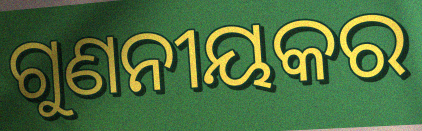
ଗୁଣନୀୟକର